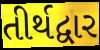
તીર્થદ્વાર